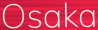
Osaka